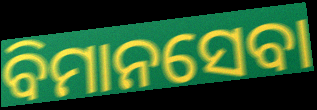
ବିମାନସେବା